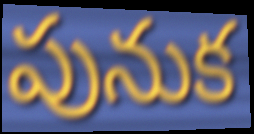
పునుక